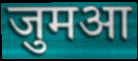
जुमआ